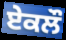
ਏਕਲੌ